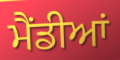
ਮੈਂਡੀਆਂ